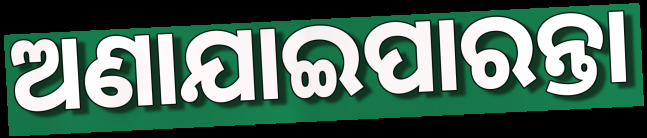
ଅଣାଯାଇପାରନ୍ତା